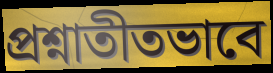
প্রশ্নাতীতভাবে